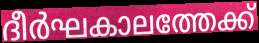
ദീർഘകാലത്തേക്ക്